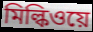
মিল্কিওয়ে